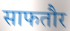
साफतौर